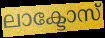
ലാക്ടോസ്